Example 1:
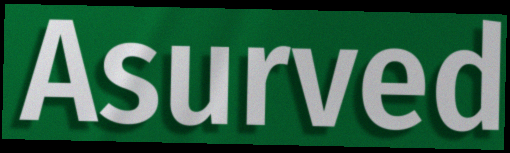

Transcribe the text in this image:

Asurved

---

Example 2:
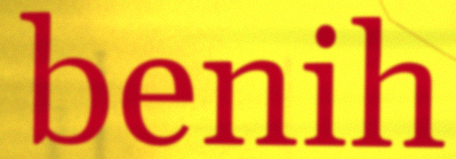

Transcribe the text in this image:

benih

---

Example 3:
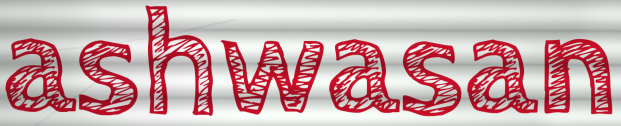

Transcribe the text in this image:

ashwasan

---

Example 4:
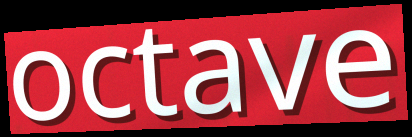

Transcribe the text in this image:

octave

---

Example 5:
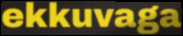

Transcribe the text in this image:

ekkuvaga